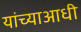
यांच्याआधी